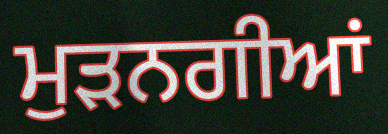
ਮੁੜਨਗੀਆਂ